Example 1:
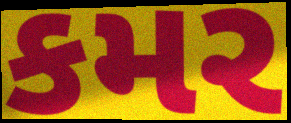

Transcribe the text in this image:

કમર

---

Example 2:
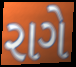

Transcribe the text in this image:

રાગે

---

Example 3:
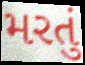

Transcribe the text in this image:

મરતું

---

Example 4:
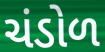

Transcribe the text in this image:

ચંડોળ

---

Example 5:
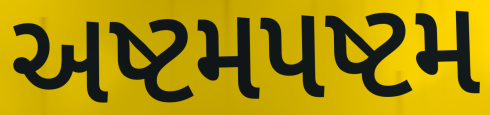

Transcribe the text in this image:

અષ્ટમપષ્ટમ